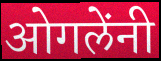
ओगलेंनी